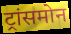
ट्रांसमोन